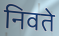
निवते